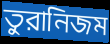
তুরানিজম